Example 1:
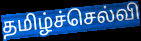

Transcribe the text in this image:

தமிழ்ச்செல்வி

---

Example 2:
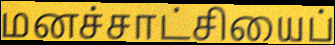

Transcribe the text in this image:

மனச்சாட்சியைப்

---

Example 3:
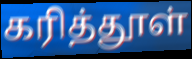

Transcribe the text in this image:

கரித்தூள்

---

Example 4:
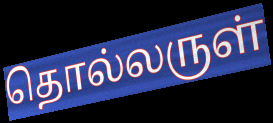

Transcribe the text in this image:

தொல்லருள்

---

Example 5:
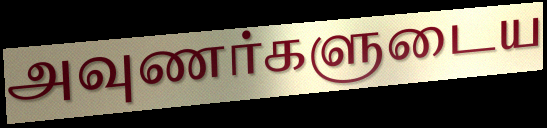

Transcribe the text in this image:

அவுணர்களுடைய